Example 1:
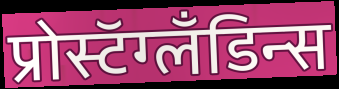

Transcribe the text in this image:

प्रोस्टॅग्लॅंडिन्स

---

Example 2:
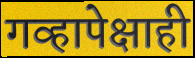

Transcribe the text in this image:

गव्हापेक्षाही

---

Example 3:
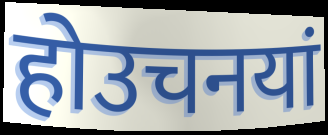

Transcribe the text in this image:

होउचनयां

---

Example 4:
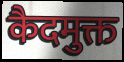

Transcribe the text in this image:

कैदमुक्त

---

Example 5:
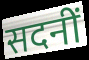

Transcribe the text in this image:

सदनीं